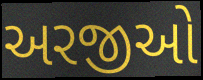
અરજીઓ